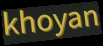
khoyan